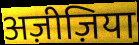
अज़ीज़िया